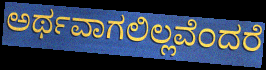
ಅರ್ಥವಾಗಲಿಲ್ಲವೆಂದರೆ